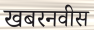
खबरनवीस